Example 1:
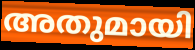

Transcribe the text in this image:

അതുമായി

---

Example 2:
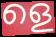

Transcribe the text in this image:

ളെ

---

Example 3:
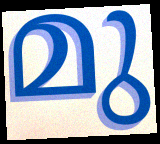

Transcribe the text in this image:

മു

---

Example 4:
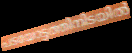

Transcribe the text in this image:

പടയോട്ടത്തിനിടയിൽ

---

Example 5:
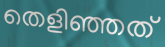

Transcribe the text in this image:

തെളിഞ്ഞത്